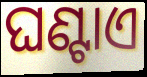
ଘଣ୍ଟାଏ